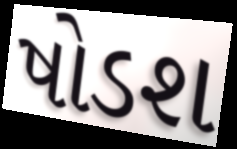
ષોડશ